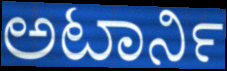
ಅಟಾರ್ನಿ